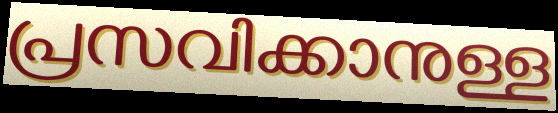
പ്രസവിക്കാനുള്ള